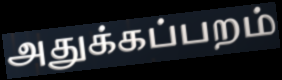
அதுக்கப்பறம்